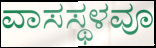
ವಾಸಸ್ಥಳವೂ